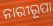
ନାରୀରୂପା